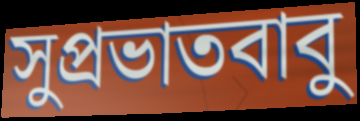
সুপ্রভাতবাবু